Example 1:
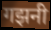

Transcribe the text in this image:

गझनी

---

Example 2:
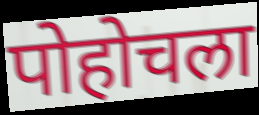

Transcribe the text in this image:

पोहोचला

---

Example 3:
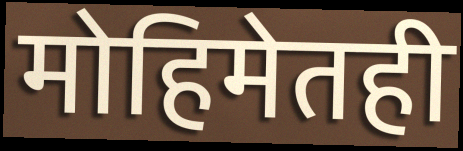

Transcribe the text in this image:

मोहिमेतही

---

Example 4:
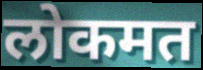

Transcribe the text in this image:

लोकमत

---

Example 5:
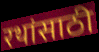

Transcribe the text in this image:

रथांसाठी